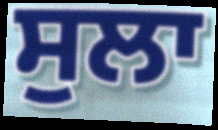
ਸੁਲਾ